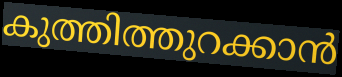
കുത്തിത്തുറക്കാൻ